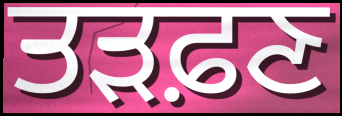
ਤੜਫ਼ਣ